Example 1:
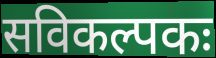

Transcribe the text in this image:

सविकल्पकः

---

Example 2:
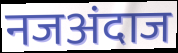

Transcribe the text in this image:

नजअंदाज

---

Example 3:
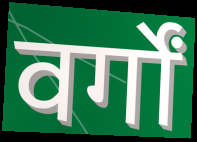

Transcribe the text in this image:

वर्गों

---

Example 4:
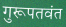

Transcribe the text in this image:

गुरूपतवंत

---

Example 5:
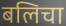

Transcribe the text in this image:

बलिचा